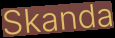
Skanda